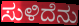
ಸುಳಿದೆನು